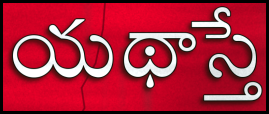
యథాస్తే